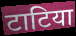
टाटिया